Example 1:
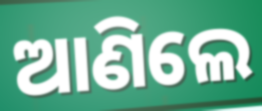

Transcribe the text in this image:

ଆଣିଲେ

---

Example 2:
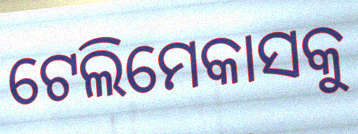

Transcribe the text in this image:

ଟେଲିମେକାସକୁ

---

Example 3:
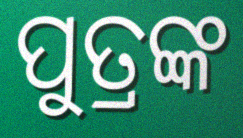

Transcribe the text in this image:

ପୁତ୍ରଙ୍କ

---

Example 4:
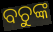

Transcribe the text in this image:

ବଚୁଙ୍କ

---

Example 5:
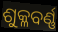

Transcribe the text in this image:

ଶୁକ୍ଳବର୍ଣ୍ଣ